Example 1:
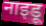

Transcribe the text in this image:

नाइडू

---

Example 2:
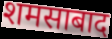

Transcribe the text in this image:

शमसाबाद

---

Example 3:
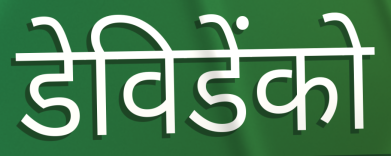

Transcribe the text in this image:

डेविडेंको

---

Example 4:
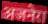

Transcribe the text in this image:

अजनेरा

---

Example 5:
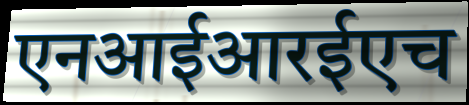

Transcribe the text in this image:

एनआईआरईएच